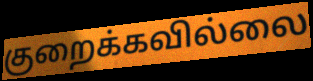
குறைக்கவில்லை